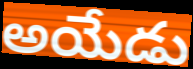
అయేడు